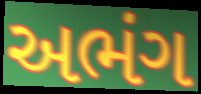
અભંગ